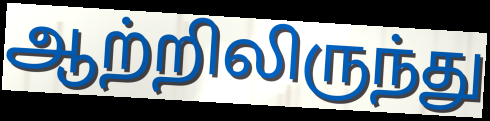
ஆற்றிலிருந்து